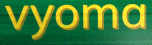
vyoma